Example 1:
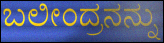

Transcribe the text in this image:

ಬಲೀಂದ್ರನನ್ನು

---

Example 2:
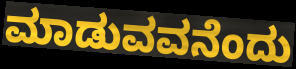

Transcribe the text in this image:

ಮಾಡುವವನೆಂದು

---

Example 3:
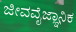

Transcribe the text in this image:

ಜೀವವೈಜ್ಞಾನಿಕ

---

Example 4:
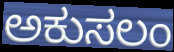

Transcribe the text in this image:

ಅಕುಸಲಂ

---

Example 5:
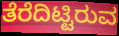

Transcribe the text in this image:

ತೆರೆದಿಟ್ಟಿರುವ